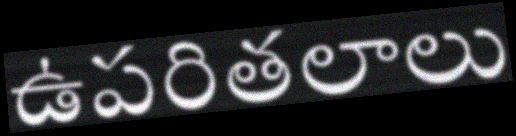
ఉపరితలాలు